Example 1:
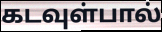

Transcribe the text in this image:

கடவுள்பால்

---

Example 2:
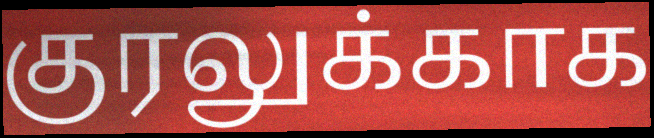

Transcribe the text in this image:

குரலுக்காக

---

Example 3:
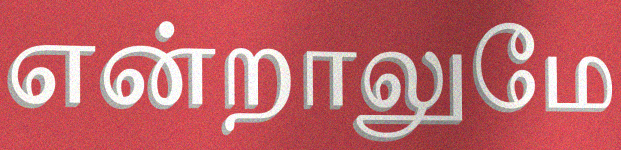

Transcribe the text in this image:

என்றாலுமே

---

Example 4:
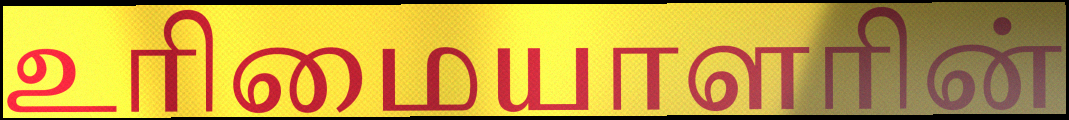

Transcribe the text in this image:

உரிமையாளரின்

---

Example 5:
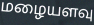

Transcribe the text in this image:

மழையளவு